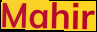
Mahir